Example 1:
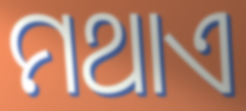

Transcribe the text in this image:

ମଥାଏ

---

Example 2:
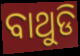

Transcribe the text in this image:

ବାଥୁଡି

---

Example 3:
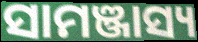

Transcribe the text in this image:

ସାମଞ୍ଜାସ୍ୟ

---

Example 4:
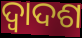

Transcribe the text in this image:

ଦ୍ଵାଦଶ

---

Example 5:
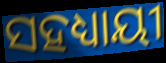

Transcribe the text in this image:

ସହଧ୍ୟାୟୀ